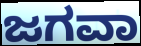
ಜಗವಾ